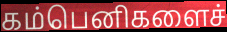
கம்பெனிகளைச்